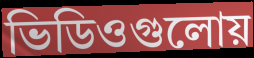
ভিডিওগুলোয়